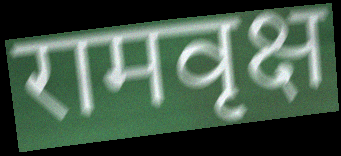
रामवृक्ष